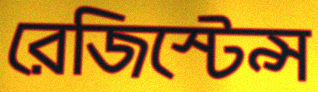
রেজিস্টেন্স